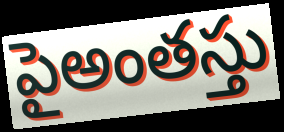
పైఅంతస్తు